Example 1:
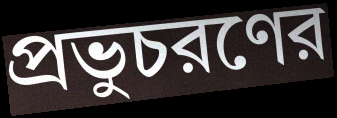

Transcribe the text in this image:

প্রভুচরণের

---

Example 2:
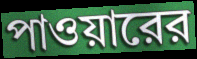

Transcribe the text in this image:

পাওয়ারের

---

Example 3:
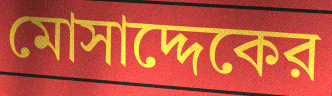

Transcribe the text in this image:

মোসাদ্দেকের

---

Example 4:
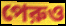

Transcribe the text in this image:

পেরুও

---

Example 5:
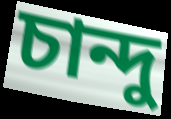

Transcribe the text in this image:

চান্দু